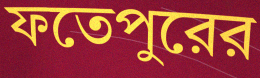
ফতেপুরের